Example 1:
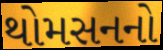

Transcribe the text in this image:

થોમસનનો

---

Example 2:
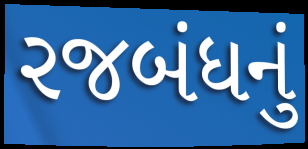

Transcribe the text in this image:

રજબંધનું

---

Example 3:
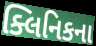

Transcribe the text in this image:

ક્લિનિકના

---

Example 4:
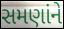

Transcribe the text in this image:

સમણાંને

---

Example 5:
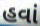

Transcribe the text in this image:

હવાં